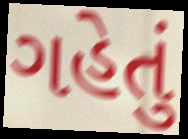
ગહેતું